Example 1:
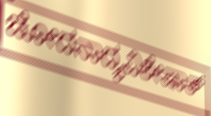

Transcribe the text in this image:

ಚೋದನಾದ್ಯವಿಶೇಷಾತ್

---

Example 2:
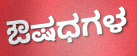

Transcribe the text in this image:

ಔಷಧಗಳ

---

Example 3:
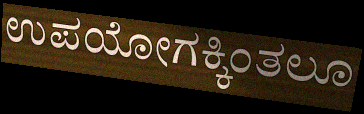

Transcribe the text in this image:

ಉಪಯೋಗಕ್ಕಿಂತಲೂ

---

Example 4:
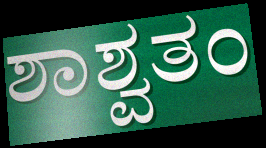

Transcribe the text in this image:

ಶಾಶ್ವತಂ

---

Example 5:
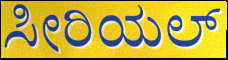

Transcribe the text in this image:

ಸೀರಿಯಲ್